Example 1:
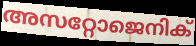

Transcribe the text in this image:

അസറ്റോജെനിക്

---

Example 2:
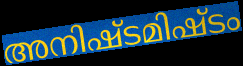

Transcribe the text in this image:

അനിഷ്ടമിഷ്ടം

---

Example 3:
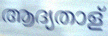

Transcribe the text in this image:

ആദ്യതാള്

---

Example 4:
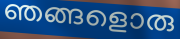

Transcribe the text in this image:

ഞങ്ങളൊരു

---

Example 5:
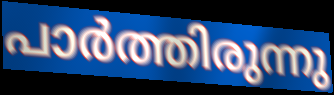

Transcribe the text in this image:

പാർത്തിരുന്നു